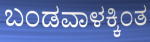
ಬಂಡವಾಳಕ್ಕಿಂತ